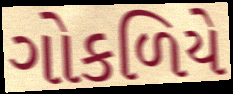
ગોકળિયે